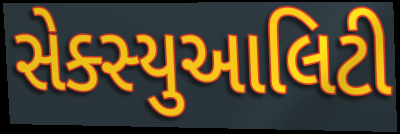
સેક્સ્યુઆલિટી